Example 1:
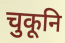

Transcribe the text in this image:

चुकूनि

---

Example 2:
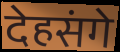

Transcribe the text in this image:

देहसंगे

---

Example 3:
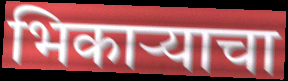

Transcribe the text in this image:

भिकाऱ्याचा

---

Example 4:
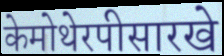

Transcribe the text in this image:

केमोथेरपीसारखे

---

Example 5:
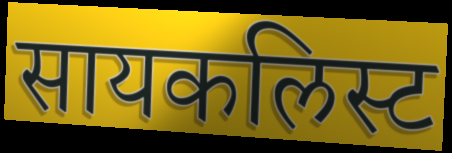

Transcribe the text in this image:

सायकलिस्ट